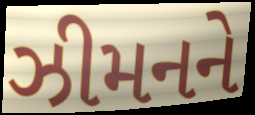
ઝીમનને